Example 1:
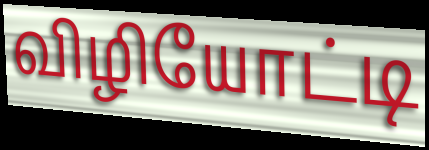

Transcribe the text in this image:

விழியோட்டி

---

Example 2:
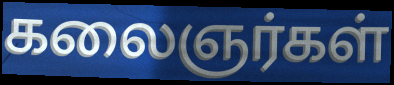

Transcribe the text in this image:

கலைஞர்கள்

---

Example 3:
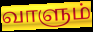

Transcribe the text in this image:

வாளும்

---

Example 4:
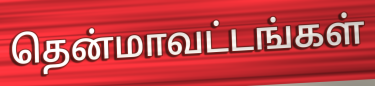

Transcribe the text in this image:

தென்மாவட்டங்கள்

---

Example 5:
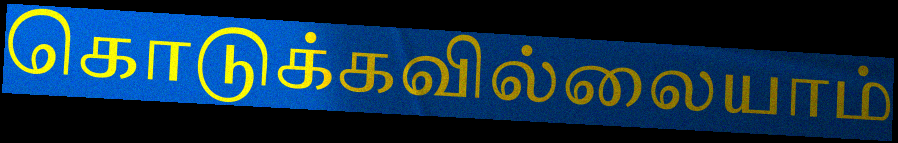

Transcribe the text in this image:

கொடுக்கவில்லையாம்